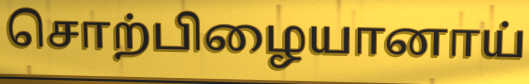
சொற்பிழையானாய்